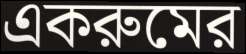
একরুমের